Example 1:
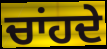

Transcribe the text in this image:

ਚਾਂਹਦੇ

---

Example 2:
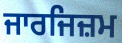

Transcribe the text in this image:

ਜਾਰਜਿਜ਼ਮ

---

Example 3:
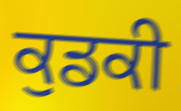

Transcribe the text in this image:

ਕੁਡਕੀ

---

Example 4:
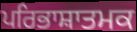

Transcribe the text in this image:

ਪਰਿਭਾਸ਼ਾਤਮਕ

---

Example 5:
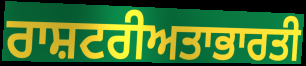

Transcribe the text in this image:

ਰਾਸ਼ਟਰੀਅਤਾਭਾਰਤੀ